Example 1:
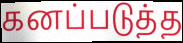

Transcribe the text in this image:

கனப்படுத்த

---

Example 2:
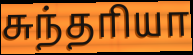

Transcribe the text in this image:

சுந்தரியா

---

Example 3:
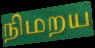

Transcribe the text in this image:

நிமறய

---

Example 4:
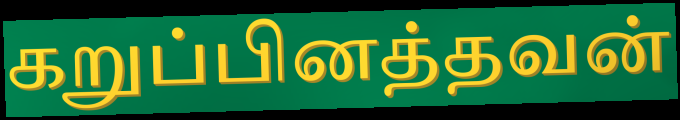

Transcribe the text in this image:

கறுப்பினத்தவன்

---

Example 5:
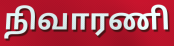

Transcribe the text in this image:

நிவாரணி